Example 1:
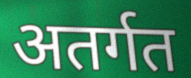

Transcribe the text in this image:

अतर्गत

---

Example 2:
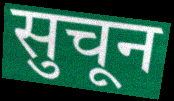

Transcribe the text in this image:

सुचून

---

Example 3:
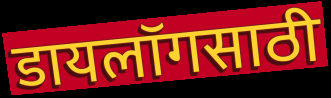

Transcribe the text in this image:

डायलॉगसाठी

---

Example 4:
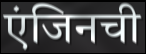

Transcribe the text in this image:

एंजिनची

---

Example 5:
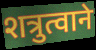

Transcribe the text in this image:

शत्रुत्वाने